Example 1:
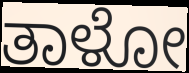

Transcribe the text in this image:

ತಾಳೋ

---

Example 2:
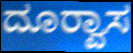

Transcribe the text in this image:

ದೂರ‍್ವಾಸ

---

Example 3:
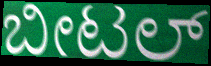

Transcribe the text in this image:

ಬೀಟಲ್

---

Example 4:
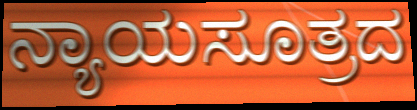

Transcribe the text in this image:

ನ್ಯಾಯಸೂತ್ರದ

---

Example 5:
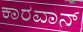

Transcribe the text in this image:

ಕಾರವಾನ್